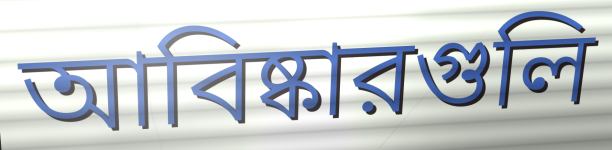
আবিষ্কারগুলি